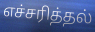
எச்சரித்தல்